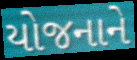
યોજનાને